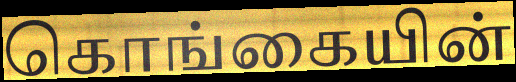
கொங்கையின்